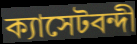
ক্যাসেটবন্দী